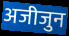
अजीजुन